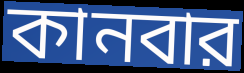
কানবার